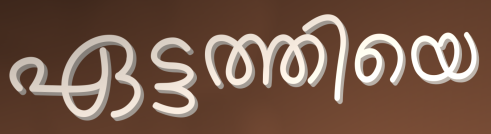
ഏട്ടത്തിയെ